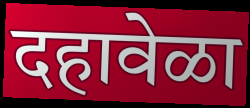
दहावेळा